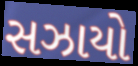
સઝાયો